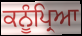
ਕਨੂੰਪ੍ਰਿਆ